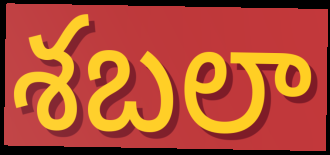
శబలా